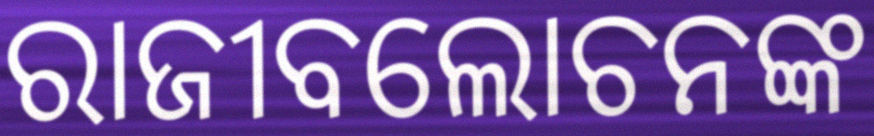
ରାଜୀବଲୋଚନଙ୍କ